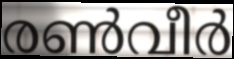
രൺവീർ